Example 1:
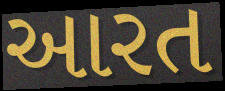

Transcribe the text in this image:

આરત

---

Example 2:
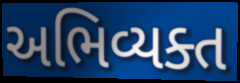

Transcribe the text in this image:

અભિવ્યક્ત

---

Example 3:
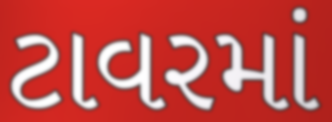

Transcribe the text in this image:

ટાવરમાં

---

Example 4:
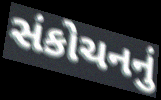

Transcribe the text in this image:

સંકોચનનું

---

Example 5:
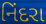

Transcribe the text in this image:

નિંદરા